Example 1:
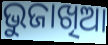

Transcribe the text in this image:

ଭୁଜାଖିଆ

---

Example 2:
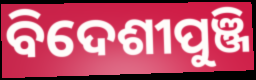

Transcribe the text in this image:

ବିଦେଶୀପୁଞ୍ଜି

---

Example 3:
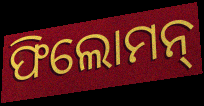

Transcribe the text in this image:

ଫିଲୋମନ୍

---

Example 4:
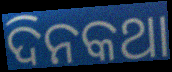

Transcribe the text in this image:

ଦିନକଥା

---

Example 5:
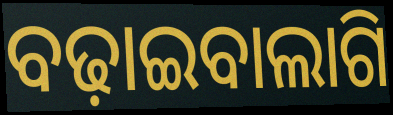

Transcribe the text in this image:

ବଢ଼ାଇବାଲାଗି